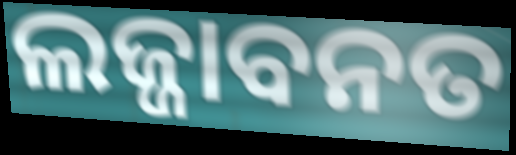
ଲଜ୍ଜାବନତ